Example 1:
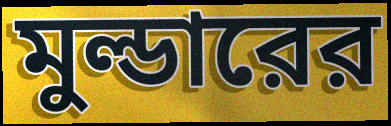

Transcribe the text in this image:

মুল্ডারের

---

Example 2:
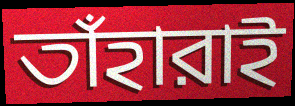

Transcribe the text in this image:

তাঁহারাই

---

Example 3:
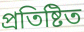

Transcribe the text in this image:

প্রতিষ্টিত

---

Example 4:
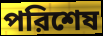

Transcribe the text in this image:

পরিশেষ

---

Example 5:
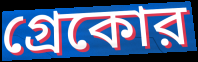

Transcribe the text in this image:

গ্রেকোর